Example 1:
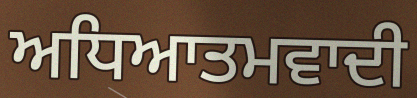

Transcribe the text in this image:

ਅਧਿਆਤਮਵਾਦੀ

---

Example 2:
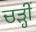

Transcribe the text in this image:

ਚੜ੍ਹੀਂ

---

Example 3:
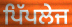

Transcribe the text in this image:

ਪਿੱਪਲੇਜ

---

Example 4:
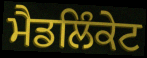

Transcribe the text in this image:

ਮੈਡਲਿੰਕੇਟ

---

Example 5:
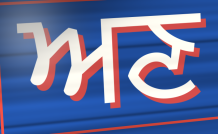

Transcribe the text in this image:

ਅਣ